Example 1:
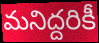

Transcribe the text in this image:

మనిద్దరికీ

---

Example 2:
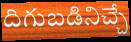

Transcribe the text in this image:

దిగుబడినిచ్చే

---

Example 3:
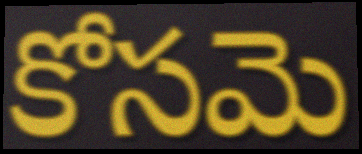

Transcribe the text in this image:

కోసమె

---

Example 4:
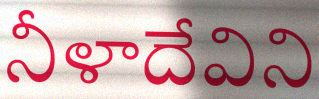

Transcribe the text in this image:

నీళాదేవిని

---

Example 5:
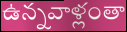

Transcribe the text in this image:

ఉన్నవాళ్లంతా